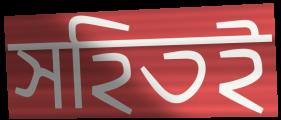
সহিতই